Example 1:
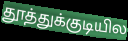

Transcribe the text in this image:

தூத்துக்குடியில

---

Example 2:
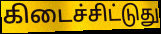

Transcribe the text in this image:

கிடைச்சிட்டுது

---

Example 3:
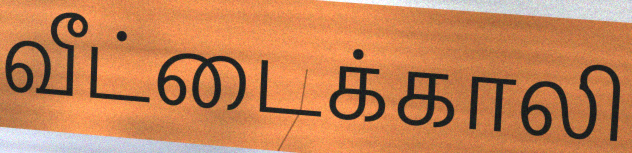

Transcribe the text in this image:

வீட்டைக்காலி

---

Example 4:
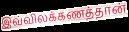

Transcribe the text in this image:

இவ்விலக்கணத்தான்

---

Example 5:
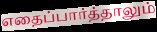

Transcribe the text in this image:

எதைப்பார்த்தாலும்